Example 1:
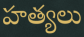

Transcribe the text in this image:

హత్యలు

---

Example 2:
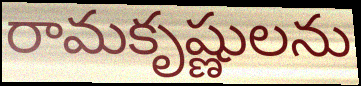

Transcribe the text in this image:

రామకృష్ణులను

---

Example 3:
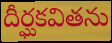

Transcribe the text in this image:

దీర్ఘకవితను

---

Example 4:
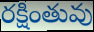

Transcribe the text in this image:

రక్షింతువు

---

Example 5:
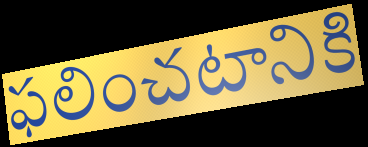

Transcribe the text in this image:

ఫలించటానికి